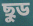
ছুড